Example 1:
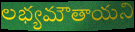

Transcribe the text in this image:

లభ్యమౌతాయని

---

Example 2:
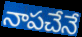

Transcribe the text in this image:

నాపచేనే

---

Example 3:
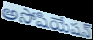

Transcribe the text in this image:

అసోషియేషన్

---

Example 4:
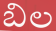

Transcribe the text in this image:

బిల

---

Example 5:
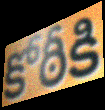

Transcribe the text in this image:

కోఠీకి